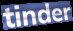
tinder